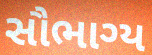
સૌભાગ્ય